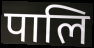
पालि